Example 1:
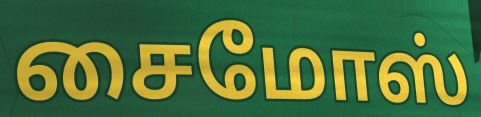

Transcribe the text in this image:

சைமோஸ்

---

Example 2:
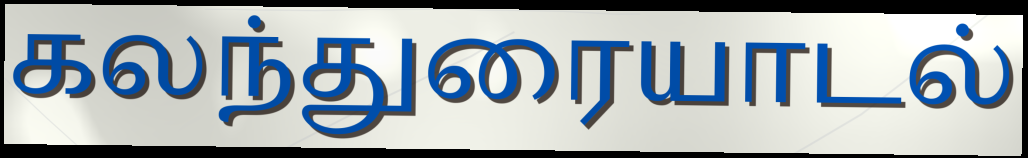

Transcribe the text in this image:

கலந்துரையாடல்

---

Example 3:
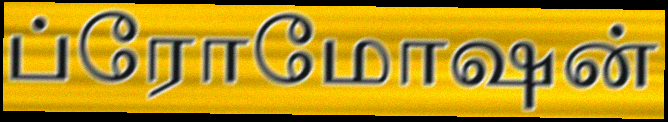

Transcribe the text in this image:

ப்ரோமோஷன்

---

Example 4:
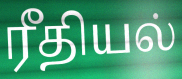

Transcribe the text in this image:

ரீதியல்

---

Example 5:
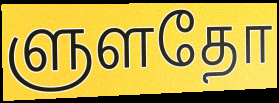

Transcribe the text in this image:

ளுளதோ